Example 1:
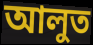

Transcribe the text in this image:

আলুত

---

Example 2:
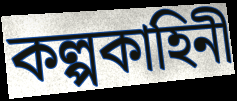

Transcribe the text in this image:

কল্পকাহিনী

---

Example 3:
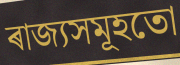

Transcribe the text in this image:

ৰাজ্যসমূহতো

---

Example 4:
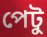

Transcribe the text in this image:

পেটু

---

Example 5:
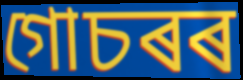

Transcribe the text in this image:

গোচৰৰ